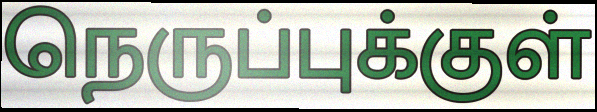
நெருப்புக்குள்